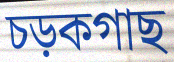
চড়কগাছ